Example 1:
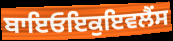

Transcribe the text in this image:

ਬਾਇਓਇਕੁਇਵਲੈਂਸ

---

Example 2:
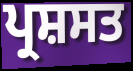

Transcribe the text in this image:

ਪ੍ਰਸ਼ਸਤ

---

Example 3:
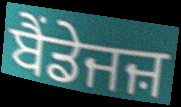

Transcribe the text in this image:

ਬੈਂਡੇਜਜ਼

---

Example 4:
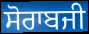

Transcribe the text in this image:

ਸੋਰਾਬਜੀ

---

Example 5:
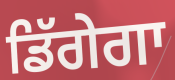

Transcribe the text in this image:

ਡਿੱਗੇਗਾ